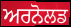
ਅਰਨੋਲਡ